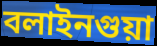
বলাইনগুয়া